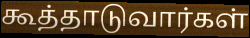
கூத்தாடுவார்கள்